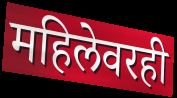
महिलेवरही